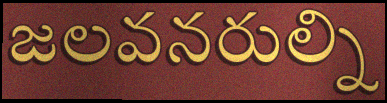
జలవనరుల్ని